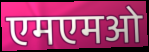
एमएमओ